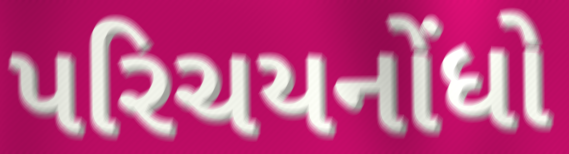
પરિચયનોંધો